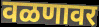
वळणावर